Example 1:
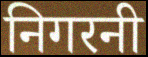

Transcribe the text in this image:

निगरनी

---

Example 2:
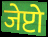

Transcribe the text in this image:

जेप्टो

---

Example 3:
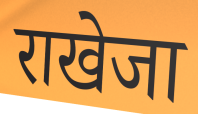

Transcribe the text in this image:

राखेजा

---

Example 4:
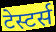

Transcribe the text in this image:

टेस्टर्स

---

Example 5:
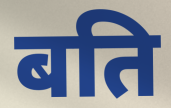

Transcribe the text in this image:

बति